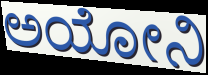
ಅಯೋನಿ